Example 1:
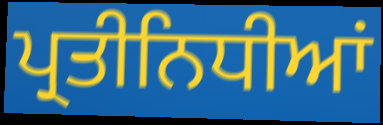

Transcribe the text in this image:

ਪ੍ਰਤੀਨਿਧੀਆਂ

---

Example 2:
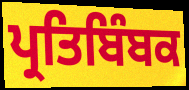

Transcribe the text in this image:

ਪ੍ਰਤਿਬਿੰਬਕ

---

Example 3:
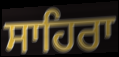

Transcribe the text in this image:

ਸਾਹਿਰਾ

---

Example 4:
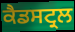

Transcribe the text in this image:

ਕੈਡਸਟ੍ਰਲ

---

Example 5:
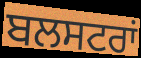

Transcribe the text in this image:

ਬਲਸਟਰਾਂ